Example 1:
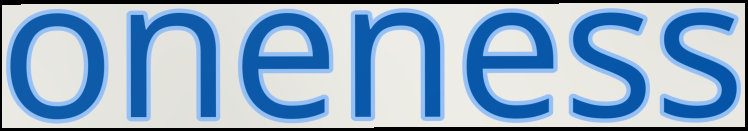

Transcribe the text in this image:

oneness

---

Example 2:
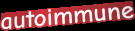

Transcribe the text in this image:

autoimmune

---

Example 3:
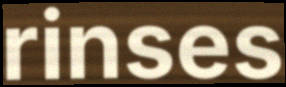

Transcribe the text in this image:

rinses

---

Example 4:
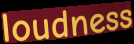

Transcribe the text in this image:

loudness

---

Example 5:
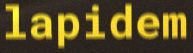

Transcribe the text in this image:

lapidem